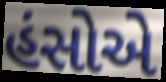
હંસોએ